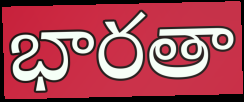
భారతా